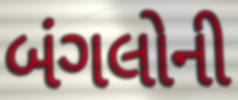
બંગલોની